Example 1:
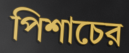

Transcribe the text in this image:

পিশাচের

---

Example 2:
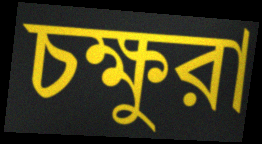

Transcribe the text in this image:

চক্ষুরা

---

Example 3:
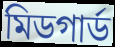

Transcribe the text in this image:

মিডগার্ড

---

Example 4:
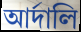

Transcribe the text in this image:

আর্দালি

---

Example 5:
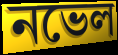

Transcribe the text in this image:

নভেল